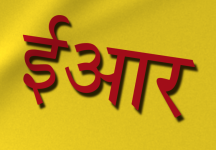
ईआर